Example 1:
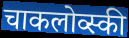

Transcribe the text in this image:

चाकलोव्स्की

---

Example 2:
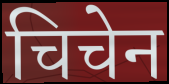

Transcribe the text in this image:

चिचेन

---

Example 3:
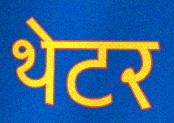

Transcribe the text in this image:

थेटर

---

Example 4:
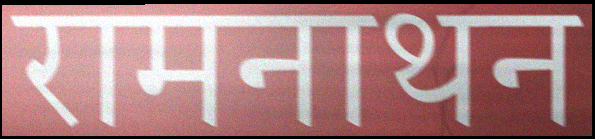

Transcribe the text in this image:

रामनाथन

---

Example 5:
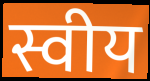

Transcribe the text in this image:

स्वीय